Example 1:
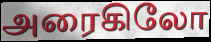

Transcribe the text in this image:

அரைகிலோ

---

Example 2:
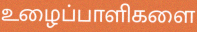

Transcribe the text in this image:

உழைப்பாளிகளை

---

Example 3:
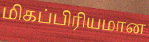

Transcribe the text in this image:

மிகப்பிரியமான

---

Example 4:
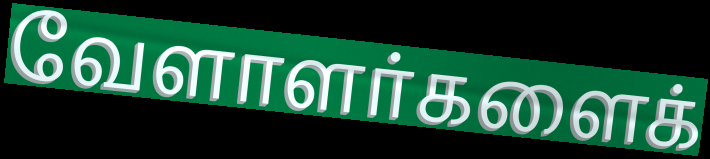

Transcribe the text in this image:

வேளாளர்களைக்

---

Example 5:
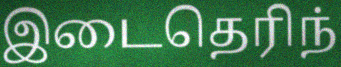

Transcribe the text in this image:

இடைதெரிந்